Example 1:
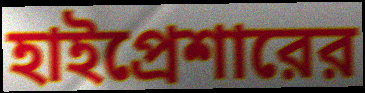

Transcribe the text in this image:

হাইপ্রেশারের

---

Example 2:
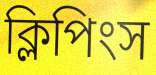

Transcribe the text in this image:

ক্লিপিংস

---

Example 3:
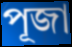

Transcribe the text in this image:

পূজা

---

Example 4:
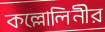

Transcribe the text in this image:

কল্লোলিনীর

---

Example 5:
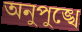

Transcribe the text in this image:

অনুপুঙ্খে